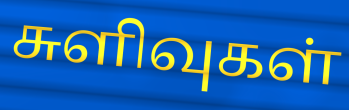
சுளிவுகள்